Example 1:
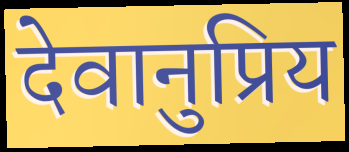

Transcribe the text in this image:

देवानुप्रिय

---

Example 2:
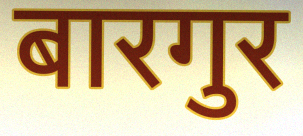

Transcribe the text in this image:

बारगुर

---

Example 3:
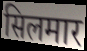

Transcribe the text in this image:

सिलमार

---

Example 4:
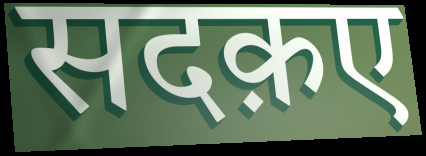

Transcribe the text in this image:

सदक़ए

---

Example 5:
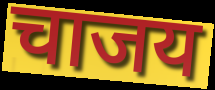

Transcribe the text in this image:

चाजय